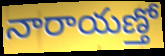
నారాయణ్తో